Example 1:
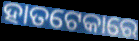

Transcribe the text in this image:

ହାତଟେକାରେ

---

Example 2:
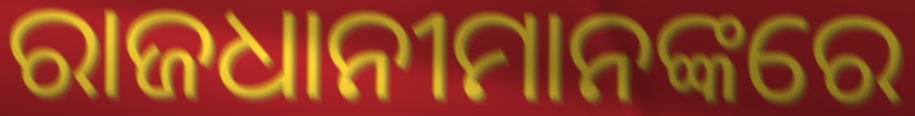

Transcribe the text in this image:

ରାଜଧାନୀମାନଙ୍କରେ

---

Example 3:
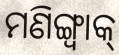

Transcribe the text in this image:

ମଣିଙ୍ଗ୍ୱାକ୍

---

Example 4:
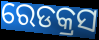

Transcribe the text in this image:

ରେଡକ୍ରସ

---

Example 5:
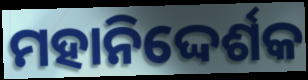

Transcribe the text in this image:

ମହାନିଦ୍ଦେର୍ଶକ